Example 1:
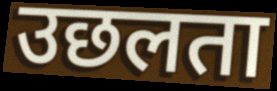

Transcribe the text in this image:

उछलता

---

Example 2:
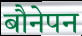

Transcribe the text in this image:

बौनेपन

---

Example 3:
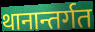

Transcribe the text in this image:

थानान्तर्गत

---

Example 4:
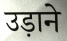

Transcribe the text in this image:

उड़ाने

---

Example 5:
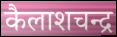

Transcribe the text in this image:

कैलाशचन्द्र